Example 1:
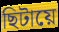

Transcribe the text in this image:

ছিটায়ে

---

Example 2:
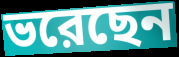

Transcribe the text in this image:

ভরেছেন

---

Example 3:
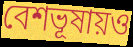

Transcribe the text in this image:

বেশভূষায়ও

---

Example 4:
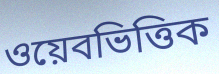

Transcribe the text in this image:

ওয়েবভিত্তিক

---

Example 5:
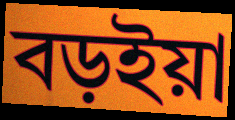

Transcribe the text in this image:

বড়ইয়া